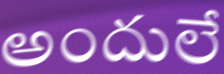
అందులే